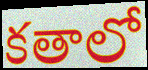
కతాలో